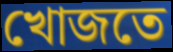
খোজতে